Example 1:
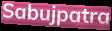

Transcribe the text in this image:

Sabujpatra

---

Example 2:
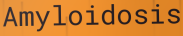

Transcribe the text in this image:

Amyloidosis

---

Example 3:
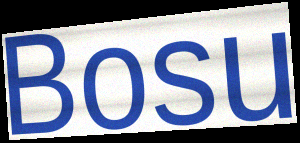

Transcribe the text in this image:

Bosu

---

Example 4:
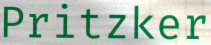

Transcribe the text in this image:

Pritzker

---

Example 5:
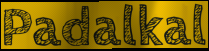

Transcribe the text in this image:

Padalkal